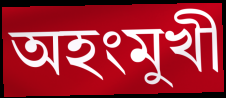
অহংমুখী